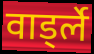
वार्ड्ले